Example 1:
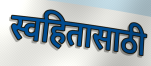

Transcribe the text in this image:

स्वहितासाठी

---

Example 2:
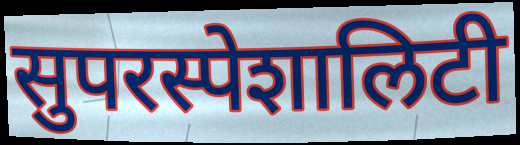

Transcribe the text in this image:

सुपरस्पेशालिटी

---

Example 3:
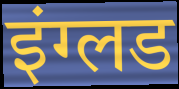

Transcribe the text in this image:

इंग्लड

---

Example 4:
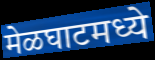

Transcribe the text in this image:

मेळघाटमध्ये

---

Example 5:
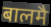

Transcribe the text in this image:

बालमै